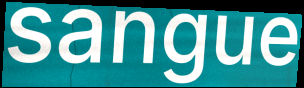
sangue